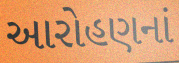
આરોહણનાં